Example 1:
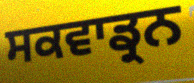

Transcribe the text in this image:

ਸਕਵਾਡ੍ਰਨ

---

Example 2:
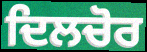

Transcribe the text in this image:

ਦਿਲਚੋਰ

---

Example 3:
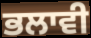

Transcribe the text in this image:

ਭਲਾਵੀ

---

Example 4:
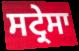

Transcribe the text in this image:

ਸਟ੍ਰੇਸਾ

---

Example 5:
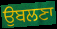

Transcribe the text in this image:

ਉਬਲਣਾ